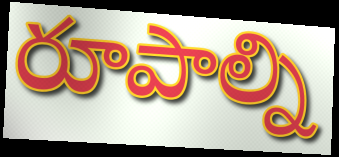
రూపాల్ని